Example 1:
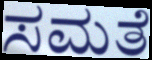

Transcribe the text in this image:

ಸಮತೆ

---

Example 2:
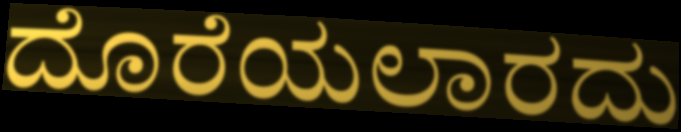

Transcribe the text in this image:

ದೊರೆಯಲಾರದು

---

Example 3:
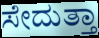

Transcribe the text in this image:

ಸೇದುತ್ತಾ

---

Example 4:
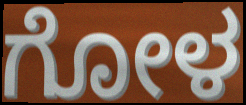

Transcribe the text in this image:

ಗೋಳ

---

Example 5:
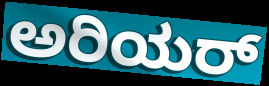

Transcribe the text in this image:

ಅರಿಯರ್